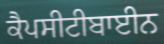
ਕੈਪਸੀਟੀਬਾਈਨ